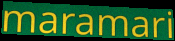
maramari